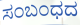
ಸಂಬಂಧದ